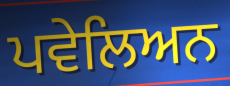
ਪਵੇਲਿਅਨ